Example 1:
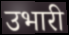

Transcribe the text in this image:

उभारी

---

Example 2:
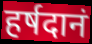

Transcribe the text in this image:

हर्षदानं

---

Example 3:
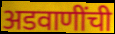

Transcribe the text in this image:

अडवाणींची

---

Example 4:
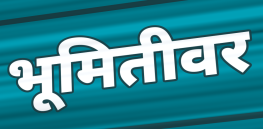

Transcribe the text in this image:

भूमितीवर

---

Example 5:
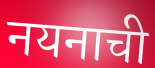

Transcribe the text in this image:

नयनाची